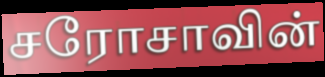
சரோசாவின்